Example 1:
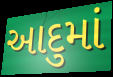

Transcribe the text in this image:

આદુમાં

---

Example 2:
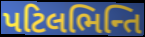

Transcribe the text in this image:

પટિલભિન્તિ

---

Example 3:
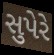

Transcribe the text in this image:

સુપેરે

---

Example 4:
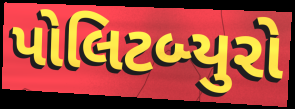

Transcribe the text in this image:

પોલિટબ્યુરો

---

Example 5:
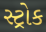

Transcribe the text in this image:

સ્ટ્રોક